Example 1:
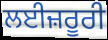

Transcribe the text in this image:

ਲਈਜ਼ਰੂਰੀ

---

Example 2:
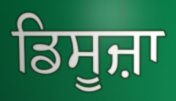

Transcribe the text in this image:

ਡਿਸੂਜ਼ਾ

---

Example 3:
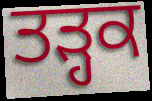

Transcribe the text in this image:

ਤੜ੍ਹਕ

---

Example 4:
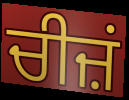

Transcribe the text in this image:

ਚੀਜ਼ਂ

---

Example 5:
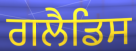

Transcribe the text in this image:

ਗਲੈਡਿਸ